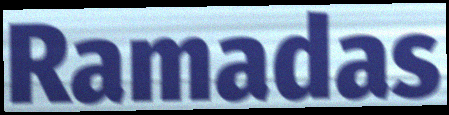
Ramadas